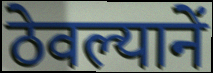
ठेवल्यानें